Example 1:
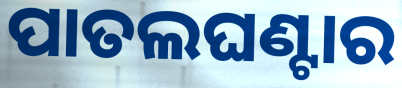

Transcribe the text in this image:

ପାତଲଘଣ୍ଟାର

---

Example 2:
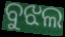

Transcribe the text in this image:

ବୁଝଲ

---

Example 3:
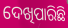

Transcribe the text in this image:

ଦେଖିପାରିଛି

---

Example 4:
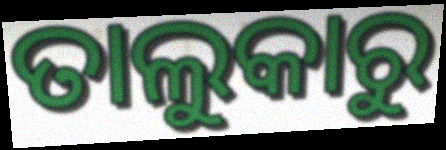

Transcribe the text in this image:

ତାଲୁକାରୁ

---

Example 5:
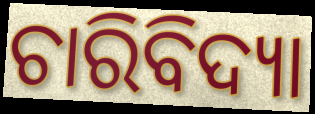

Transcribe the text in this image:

ଚାରିବିଦ୍ୟା